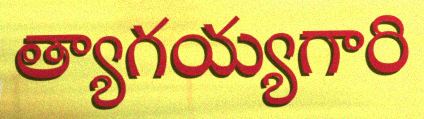
త్యాగయ్యగారి